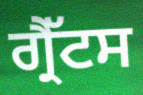
ਗ੍ਰੈੱਟਸ